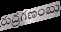
రుద్రగణంబు